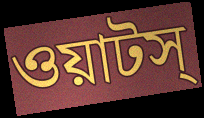
ওয়াটস্